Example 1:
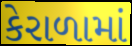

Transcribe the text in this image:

કેરાળામાં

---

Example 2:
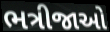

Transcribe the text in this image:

ભત્રીજાઓ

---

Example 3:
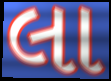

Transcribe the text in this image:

લા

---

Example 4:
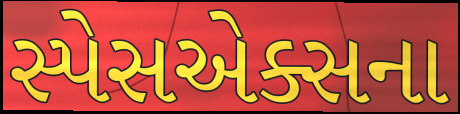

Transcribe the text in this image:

સ્પેસએક્સના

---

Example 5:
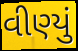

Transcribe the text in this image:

વીણ્યું